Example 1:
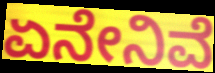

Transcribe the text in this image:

ಏನೇನಿವೆ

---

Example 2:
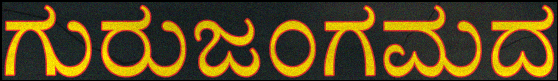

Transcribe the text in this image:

ಗುರುಜಂಗಮದ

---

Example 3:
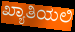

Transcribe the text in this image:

ಖ್ಯಾತಿಯಲಿ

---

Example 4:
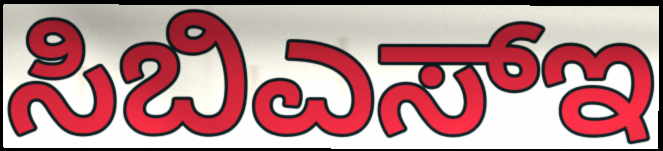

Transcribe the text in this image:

ಸಿಬಿಎಸ್ಇ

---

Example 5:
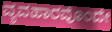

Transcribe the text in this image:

ವ್ಯವಹಾರವೊಂದೇ